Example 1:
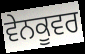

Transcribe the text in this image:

ਵੇਨਕੂਵਰ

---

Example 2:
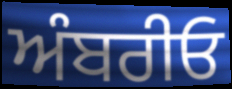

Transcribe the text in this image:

ਅੰਬਰੀਓ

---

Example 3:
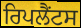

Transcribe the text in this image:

ਰਿਪਲੈਂਟਸ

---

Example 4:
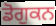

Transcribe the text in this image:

ਡੋਗੁਕਨ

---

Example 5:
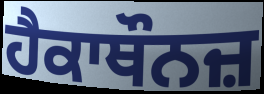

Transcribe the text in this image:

ਹੈਕਾਥੌਨਜ਼